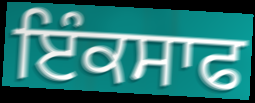
ਇੰਕਸਾਫ